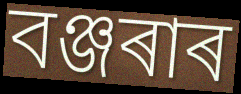
বঞ্জৰাৰ